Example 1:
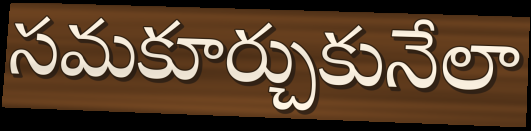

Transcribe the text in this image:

సమకూర్చుకునేలా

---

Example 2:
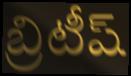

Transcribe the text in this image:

బ్రిటీష్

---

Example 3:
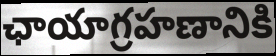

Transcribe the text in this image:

ఛాయాగ్రహణానికి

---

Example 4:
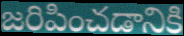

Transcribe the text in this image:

జరిపించడానికి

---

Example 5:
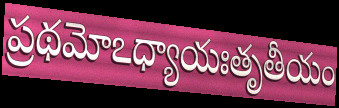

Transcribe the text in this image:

ప్రథమోఽధ్యాయఃతృతీయం